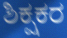
ಶಿಕ್ಷಕರ